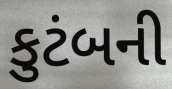
કુટંબની